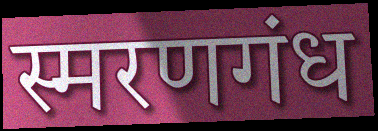
स्मरणगंध